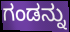
ಗಂಡನ್ನು